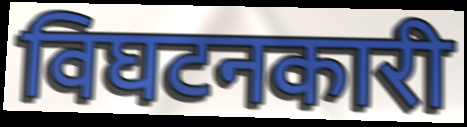
विघटनकारी